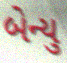
બેન્યુ